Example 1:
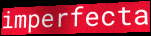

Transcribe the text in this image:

imperfecta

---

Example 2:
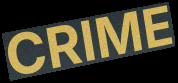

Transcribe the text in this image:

CRIME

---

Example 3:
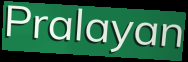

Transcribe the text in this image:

Pralayan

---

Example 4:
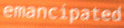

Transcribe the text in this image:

emancipated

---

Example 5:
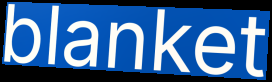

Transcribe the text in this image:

blanket